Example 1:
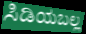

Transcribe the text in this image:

ಸಿಡಿಯಬಲ್ಲ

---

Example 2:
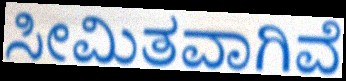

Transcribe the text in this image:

ಸೀಮಿತವಾಗಿವೆ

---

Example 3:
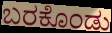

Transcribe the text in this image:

ಬರಕೊಂಡು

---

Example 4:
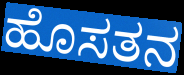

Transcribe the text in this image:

ಹೊಸತನ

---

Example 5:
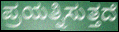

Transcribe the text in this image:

ಪ್ರಯತ್ನಿಸುತ್ತದೆ